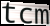
tcm